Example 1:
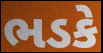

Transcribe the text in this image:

ભડકે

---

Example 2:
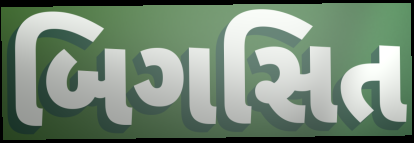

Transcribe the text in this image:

બિગસિત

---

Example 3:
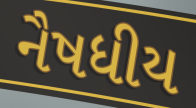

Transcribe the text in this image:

નૈષધીય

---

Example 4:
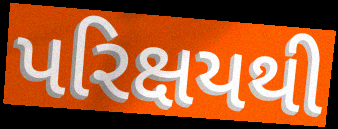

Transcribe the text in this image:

પરિક્ષયથી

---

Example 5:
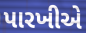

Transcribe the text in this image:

પારખીએ